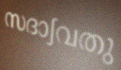
സദാഽവതു